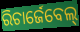
ରିଚାର୍ଜେବେଲ୍